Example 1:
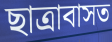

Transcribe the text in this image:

ছাত্ৰাবাসত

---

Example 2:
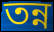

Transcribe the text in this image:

তন্ন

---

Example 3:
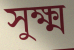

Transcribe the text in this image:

সুক্ষ্ম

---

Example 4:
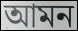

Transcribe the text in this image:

আমন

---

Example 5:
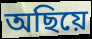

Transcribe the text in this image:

অছিয়ে